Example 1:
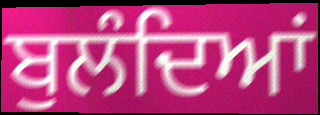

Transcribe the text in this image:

ਬੁਲੰਦਿਆਂ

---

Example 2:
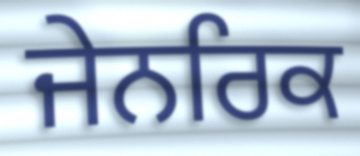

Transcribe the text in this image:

ਜੇਨਰਿਕ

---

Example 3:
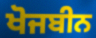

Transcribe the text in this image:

ਖੋਜਬੀਨ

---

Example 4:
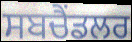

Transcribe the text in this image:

ਸਬਚੈਂਡਲਰ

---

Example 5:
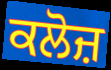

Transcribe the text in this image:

ਕਲੋਜ਼